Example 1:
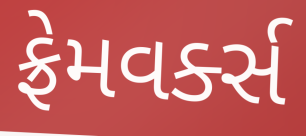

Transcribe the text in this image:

ફ્રેમવર્ક્સ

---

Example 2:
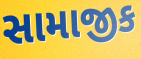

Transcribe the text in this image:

સામાજીક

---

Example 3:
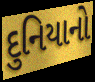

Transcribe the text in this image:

દુનિયાનો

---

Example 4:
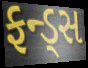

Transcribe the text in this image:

ફન્ડ્સ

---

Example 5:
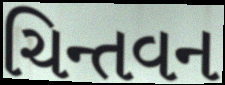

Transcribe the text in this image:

ચિન્તવન